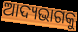
ଆଦ୍ୟଭାଗକୁ